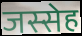
जस्सेह